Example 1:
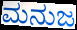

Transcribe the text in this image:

ಮನುಜ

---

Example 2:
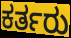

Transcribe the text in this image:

ಕರ್ತರು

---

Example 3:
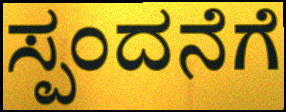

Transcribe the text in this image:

ಸ್ಪಂದನೆಗೆ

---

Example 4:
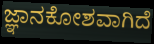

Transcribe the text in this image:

ಜ್ಞಾನಕೋಶವಾಗಿದೆ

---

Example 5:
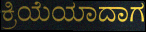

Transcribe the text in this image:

ಕ್ರಿಯೆಯಾದಾಗ